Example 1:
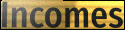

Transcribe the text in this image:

Incomes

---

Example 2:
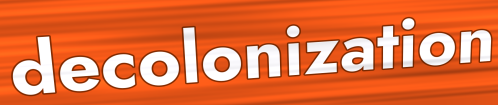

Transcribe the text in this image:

decolonization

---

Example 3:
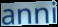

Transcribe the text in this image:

anni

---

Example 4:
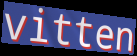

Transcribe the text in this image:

vitten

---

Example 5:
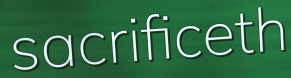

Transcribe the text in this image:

sacrificeth